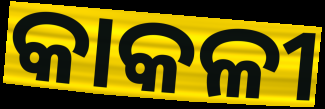
କାକଳୀ